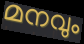
മനവും